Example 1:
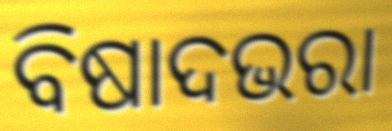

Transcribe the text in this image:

ବିଷାଦଭରା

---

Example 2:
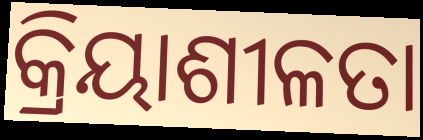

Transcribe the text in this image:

କ୍ରିୟାଶୀଳତା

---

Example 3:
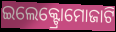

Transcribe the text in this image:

ଇଲେକ୍ଟ୍ରୋମୋଜାଟି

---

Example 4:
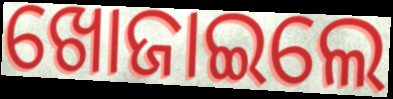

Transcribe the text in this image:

ଖୋଜାଇଲେ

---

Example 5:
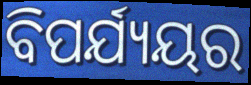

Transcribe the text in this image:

ବିପର୍ଯ୍ଯୟର